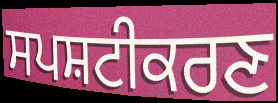
ਸਪਸ਼ਟੀਕਰਣ